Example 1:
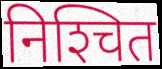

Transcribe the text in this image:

निश्‍चित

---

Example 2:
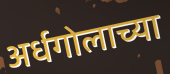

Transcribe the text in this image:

अर्धगोलाच्या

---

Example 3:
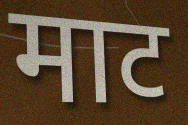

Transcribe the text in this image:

माट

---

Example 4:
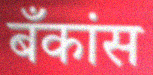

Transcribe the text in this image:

बँकांस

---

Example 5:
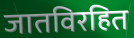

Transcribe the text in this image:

जातविरहित